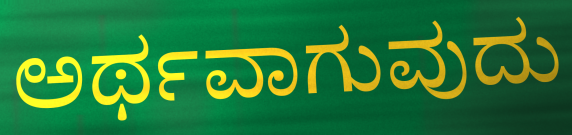
ಅರ್ಥವಾಗುವುದು